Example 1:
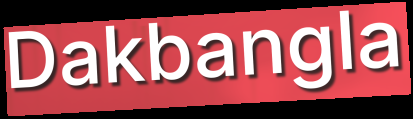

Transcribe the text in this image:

Dakbangla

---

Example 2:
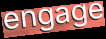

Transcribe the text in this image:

engage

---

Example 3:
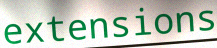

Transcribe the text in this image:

extensions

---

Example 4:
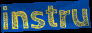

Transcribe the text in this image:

instru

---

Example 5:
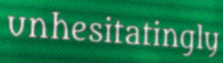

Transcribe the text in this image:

unhesitatingly